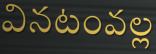
వినటంవల్ల